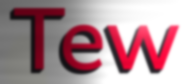
Tew